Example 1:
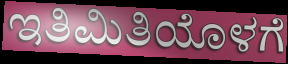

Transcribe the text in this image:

ಇತಿಮಿತಿಯೊಳಗೆ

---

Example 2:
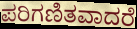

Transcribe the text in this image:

ಪರಿಗಣಿತವಾದರೆ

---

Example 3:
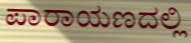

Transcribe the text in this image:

ಪಾರಾಯಣದಲ್ಲಿ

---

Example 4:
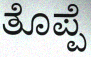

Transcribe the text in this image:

ತೊಪ್ಪೆ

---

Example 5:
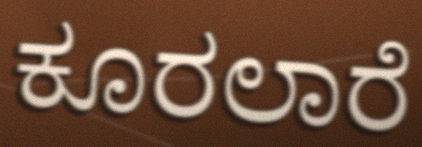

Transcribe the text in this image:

ಕೂರಲಾರೆ